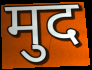
मुद